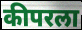
कीपरला